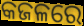
କଜଳରେ